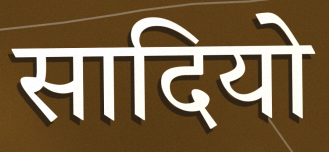
सादियो